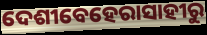
ଦେଶୀବେହେରାସାହୀରୁ